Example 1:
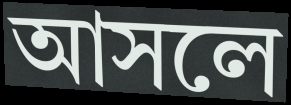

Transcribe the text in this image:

আসলে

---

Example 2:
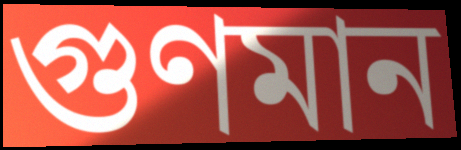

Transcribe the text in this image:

গুণমান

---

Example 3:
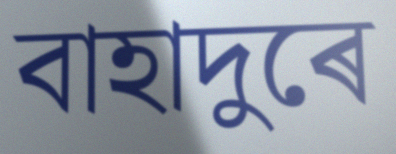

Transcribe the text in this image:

বাহাদুৰে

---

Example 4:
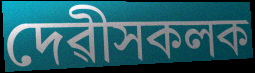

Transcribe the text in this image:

দেৱীসকলক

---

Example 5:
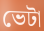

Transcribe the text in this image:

ভেটা